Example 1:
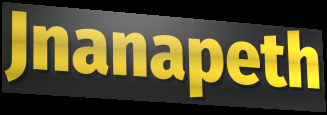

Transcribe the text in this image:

Jnanapeth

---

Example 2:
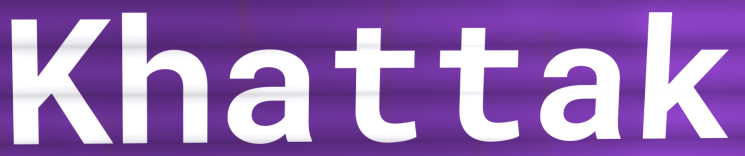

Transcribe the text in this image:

Khattak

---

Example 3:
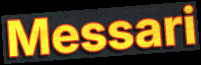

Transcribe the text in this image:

Messari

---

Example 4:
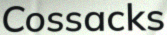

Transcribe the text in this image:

Cossacks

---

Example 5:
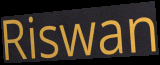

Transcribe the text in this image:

Riswan